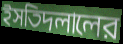
ইসতিদলালের